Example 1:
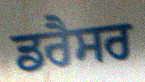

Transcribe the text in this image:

ਡਰੈਸਰ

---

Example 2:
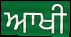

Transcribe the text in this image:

ਆਖੀ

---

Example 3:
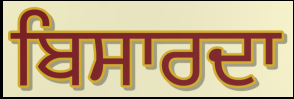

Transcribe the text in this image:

ਬਿਸਾਰਦਾ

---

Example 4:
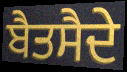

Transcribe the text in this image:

ਬੈਤਸੈਦੇ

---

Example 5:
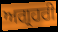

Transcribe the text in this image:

ਅਗ੍ਰਹਰੀ